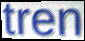
tren